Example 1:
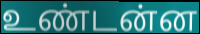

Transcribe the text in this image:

உண்டன்ன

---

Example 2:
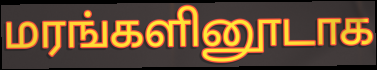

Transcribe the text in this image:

மரங்களினூடாக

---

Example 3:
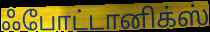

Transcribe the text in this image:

ஃபோட்டானிக்ஸ்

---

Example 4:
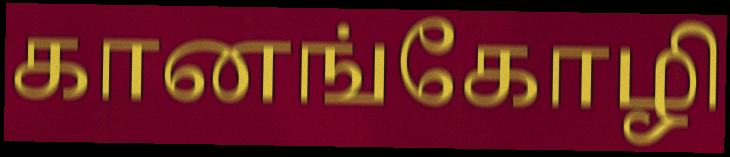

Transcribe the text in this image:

கானங்கோழி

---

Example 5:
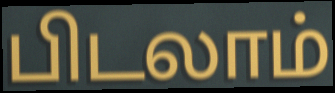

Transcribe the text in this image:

பிடலாம்